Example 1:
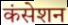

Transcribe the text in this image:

कंसेशन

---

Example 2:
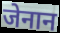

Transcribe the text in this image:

जेनान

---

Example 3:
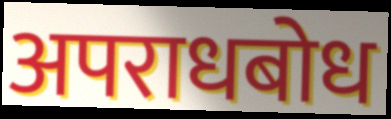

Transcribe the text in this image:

अपराधबोध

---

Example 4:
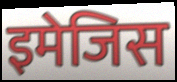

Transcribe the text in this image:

इमेजिस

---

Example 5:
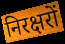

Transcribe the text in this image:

निरक्षरों